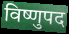
विष्णुपद